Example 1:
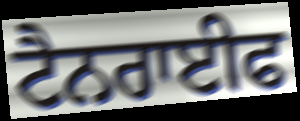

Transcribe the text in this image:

ਟੈਨਰਾਈਫ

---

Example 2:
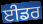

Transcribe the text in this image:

ਈਡਰ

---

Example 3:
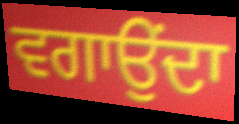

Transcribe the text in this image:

ਵਗਾਉਂਦਾ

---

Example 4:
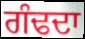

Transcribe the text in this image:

ਗੰਢਦਾ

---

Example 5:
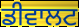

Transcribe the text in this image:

ਡੀਵਾਲਟ